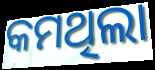
କମଥିଲା